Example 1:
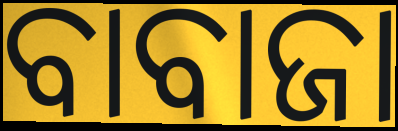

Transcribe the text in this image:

ବାବାଜା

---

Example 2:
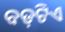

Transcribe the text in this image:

ବଡ଼ଟିଏ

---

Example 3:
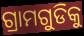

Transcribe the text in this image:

ଗ୍ରାମଗୁଡିକୁ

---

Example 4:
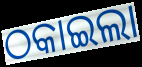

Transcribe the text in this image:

ଠକାଇଲା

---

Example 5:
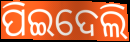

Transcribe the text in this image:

ପିଇଦେଲି